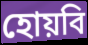
হোয়বি